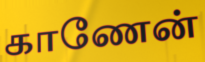
காணேன்